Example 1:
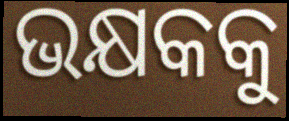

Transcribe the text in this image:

ଭକ୍ଷକକୁ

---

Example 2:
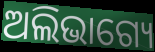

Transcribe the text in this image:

ଅଲିଭାଗ୍ୟେ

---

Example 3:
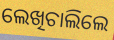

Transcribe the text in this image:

ଲେଖିଚାଲିଲେ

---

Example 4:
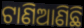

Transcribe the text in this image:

ଟାଣିଆଣିଛି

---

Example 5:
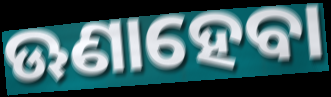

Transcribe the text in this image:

ଊଣାହେବା